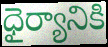
ధైర్యానికి